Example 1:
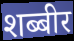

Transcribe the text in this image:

शब्बीर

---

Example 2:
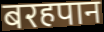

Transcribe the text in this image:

बरहपान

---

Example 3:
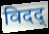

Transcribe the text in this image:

विदद्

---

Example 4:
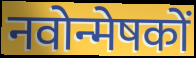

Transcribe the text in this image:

नवोन्‍मेषकों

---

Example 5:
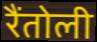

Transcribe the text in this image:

रैंतोली